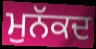
ਮੁਨੱਕਦ